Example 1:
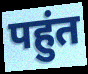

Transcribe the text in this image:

पहुंत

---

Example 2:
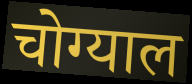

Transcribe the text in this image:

चोग्याल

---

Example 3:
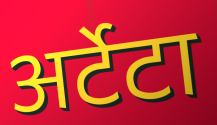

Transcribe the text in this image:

अर्टेटा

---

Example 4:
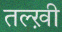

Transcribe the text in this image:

तल्ख़ी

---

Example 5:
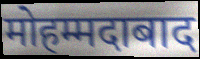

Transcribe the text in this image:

मोहम्मदाबाद